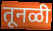
तूनळी